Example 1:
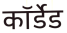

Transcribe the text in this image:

कॉर्डेड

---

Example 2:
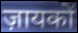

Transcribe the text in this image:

ज़ायकों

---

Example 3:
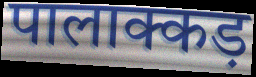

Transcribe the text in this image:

पालाक्कड़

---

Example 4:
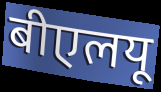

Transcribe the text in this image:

बीएलयू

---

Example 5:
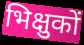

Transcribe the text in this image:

भिक्षुकों